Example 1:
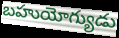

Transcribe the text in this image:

బహుయోగ్యుడు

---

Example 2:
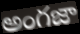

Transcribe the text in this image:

అంగజా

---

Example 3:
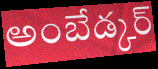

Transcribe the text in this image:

అంబేడ్కర్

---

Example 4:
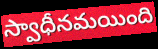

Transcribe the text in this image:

స్వాధీనమయింది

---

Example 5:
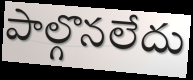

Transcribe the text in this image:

పాల్గొనలేదు